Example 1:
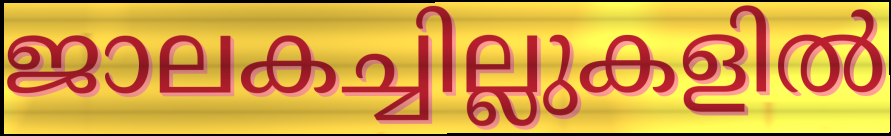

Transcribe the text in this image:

ജാലകച്ചില്ലുകളിൽ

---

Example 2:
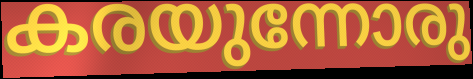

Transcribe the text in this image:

കരയുന്നോരു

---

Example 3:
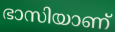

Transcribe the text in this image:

ഭാസിയാണ്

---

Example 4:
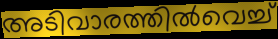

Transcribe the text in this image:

അടിവാരത്തിൽവെച്ച്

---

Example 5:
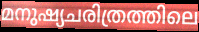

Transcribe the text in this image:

മനുഷ്യചരിത്രത്തിലെ